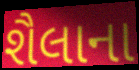
શૈલાના